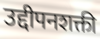
उद्दीपनशक्ती